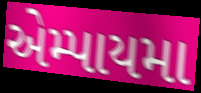
એમ્પાયમા